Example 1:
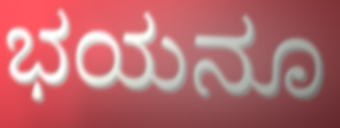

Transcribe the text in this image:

ಭಯನೂ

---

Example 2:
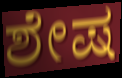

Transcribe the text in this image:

ಶೇಷ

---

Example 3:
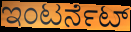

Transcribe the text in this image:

ಇಂಟರ್ನೆಟ್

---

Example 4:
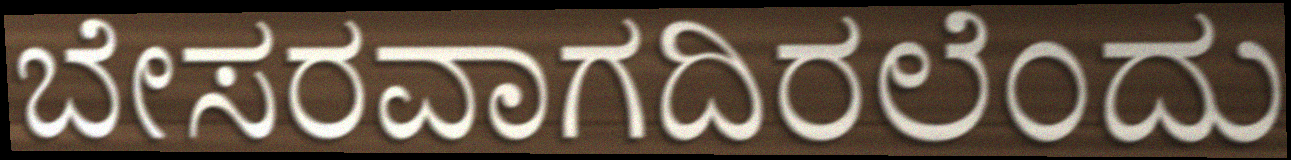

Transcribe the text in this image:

ಬೇಸರವಾಗದಿರಲೆಂದು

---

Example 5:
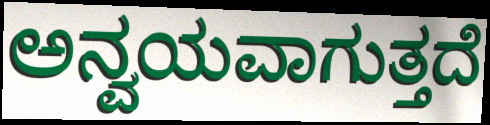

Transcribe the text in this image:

ಅನ್ವಯವಾಗುತ್ತದೆ